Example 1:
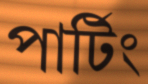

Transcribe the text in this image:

পার্টিং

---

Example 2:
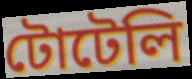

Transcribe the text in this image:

টোটেলি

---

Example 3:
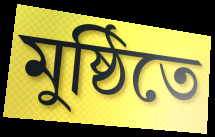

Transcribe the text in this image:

মুষ্ঠিতে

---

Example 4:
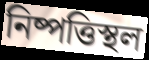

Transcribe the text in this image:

নিষ্পত্তিস্থল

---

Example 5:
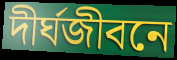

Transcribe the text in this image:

দীর্ঘজীবনে